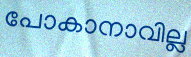
പോകാനാവില്ല